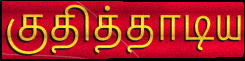
குதித்தாடிய